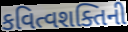
કવિત્વશક્તિની